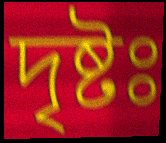
দৃষ্টঃ